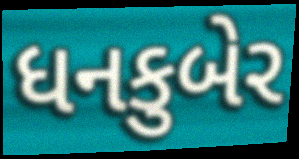
ધનકુબેર